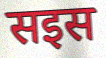
सइस